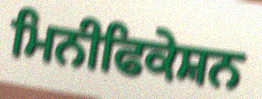
ਮਿਨੀਫਿਕੇਸ਼ਨ